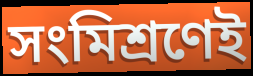
সংমিশ্রণেই